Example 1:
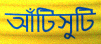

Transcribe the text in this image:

আঁটিসুটি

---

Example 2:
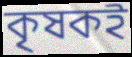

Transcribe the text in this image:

কৃষকই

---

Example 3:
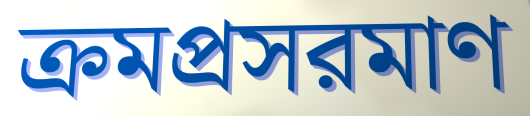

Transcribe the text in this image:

ক্রমপ্রসরমাণ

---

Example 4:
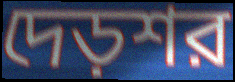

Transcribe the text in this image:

দেড়শর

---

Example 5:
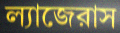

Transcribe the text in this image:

ল্যাজেরাস